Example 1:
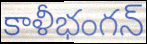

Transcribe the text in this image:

కాళీభంగన్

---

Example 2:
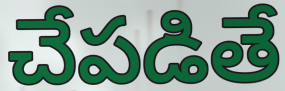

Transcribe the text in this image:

చేపడితే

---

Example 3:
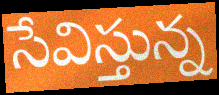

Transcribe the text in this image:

సేవిస్తున్న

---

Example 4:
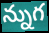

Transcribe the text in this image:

న్నుగ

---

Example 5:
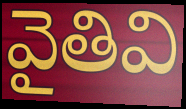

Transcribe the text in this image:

వైతివి